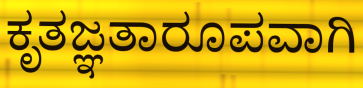
ಕೃತಜ್ಞತಾರೂಪವಾಗಿ